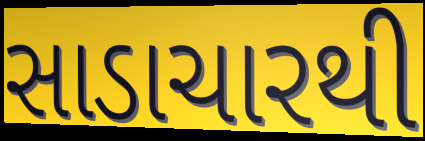
સાડાચારથી